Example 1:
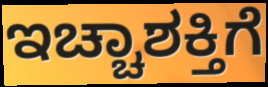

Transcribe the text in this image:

ಇಚ್ಚಾಶಕ್ತಿಗೆ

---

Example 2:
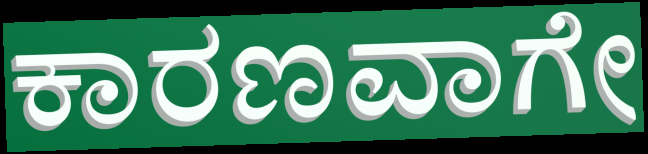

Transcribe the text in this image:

ಕಾರಣವಾಗೇ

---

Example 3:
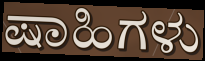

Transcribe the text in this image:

ಷಾಹಿಗಳು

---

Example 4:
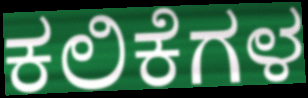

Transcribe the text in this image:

ಕಲಿಕೆಗಳ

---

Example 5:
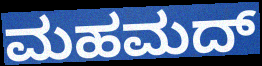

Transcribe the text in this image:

ಮಹಮದ್